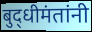
बुद्धीमंतांनी